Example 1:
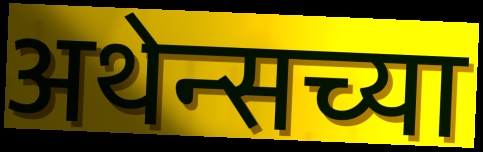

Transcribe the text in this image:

अथेन्सच्या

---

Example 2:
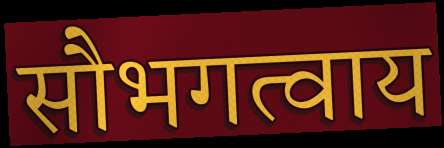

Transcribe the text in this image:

सौभगत्वाय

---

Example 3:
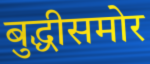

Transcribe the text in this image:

बुद्धीसमोर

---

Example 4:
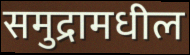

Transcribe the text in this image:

समुद्रामधील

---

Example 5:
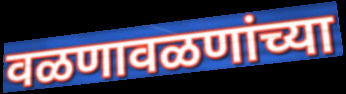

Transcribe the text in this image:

वळणावळणांच्या